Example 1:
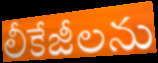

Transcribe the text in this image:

లీకేజీలను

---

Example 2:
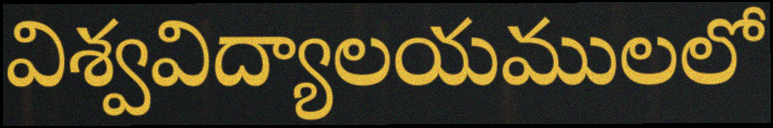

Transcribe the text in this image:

విశ్వవిద్యాలయములలో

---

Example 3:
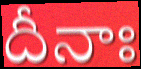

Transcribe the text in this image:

దీనాః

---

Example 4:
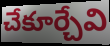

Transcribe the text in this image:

చేకూర్చేవి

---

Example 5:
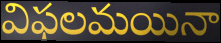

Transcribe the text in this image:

విఫలమయినా